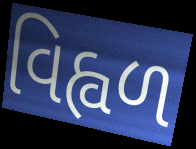
વિહ્વળ